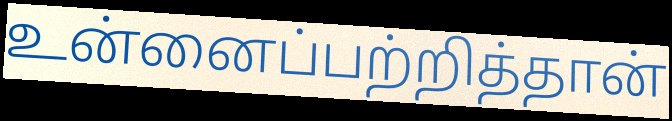
உன்னைப்பற்றித்தான்